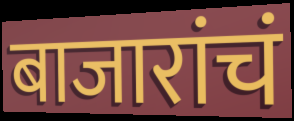
बाजारांचं